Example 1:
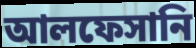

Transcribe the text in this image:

আলফেসানি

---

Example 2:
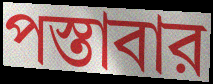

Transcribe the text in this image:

পস্তাবার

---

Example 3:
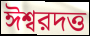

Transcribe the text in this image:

ঈশ্বরদত্ত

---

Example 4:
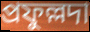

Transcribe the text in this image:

প্রফুল্লদা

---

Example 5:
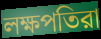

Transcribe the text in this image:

লক্ষপতিরা